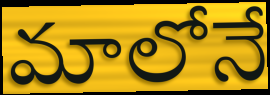
మాలోనే